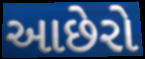
આછેરો